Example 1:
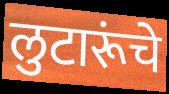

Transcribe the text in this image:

लुटारूंचे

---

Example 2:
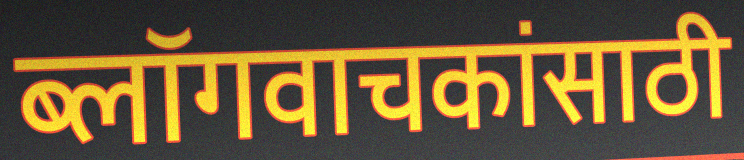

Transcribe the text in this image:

ब्लॉगवाचकांसाठी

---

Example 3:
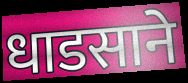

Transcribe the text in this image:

धाडसाने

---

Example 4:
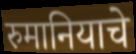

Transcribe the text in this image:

रुमानियाचे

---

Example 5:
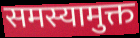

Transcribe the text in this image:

समस्यामुक्त